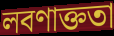
লবণাক্ততা